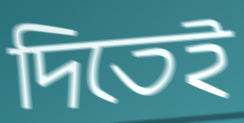
দিতেই